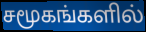
சமூகங்களில்